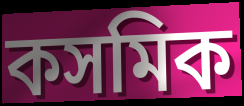
কসমিক